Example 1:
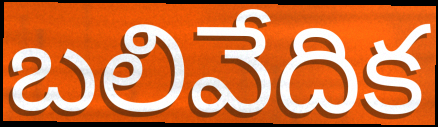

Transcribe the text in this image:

బలివేదిక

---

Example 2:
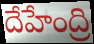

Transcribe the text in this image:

దేహేంద్రి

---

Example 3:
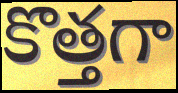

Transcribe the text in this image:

కొత్తగా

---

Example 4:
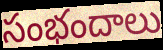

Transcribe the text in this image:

సంభందాలు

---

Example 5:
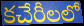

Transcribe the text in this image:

కచేరీలలో